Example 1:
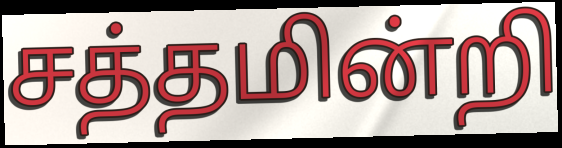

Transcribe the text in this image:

சத்தமின்றி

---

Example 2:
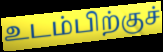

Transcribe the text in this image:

உடம்பிற்குச்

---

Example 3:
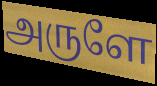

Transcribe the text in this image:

அருளே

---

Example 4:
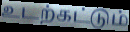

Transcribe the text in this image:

உடற்கட்டும்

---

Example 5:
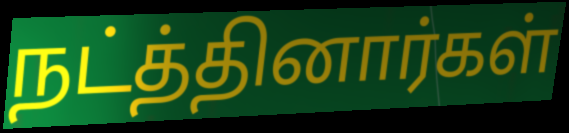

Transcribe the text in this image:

நட்த்தினார்கள்